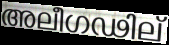
അലീഗഢില്